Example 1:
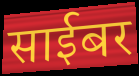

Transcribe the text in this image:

साईबर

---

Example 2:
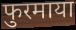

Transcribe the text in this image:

फुरमाया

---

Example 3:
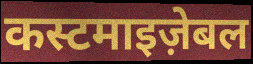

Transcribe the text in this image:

कस्टमाइज़ेबल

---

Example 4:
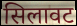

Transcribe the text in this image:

सिलावट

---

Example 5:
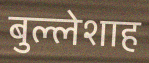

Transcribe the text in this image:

बुल्लेशाह